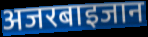
अजरबाइजान